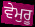
ਵੇਮੁਰੂ